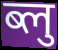
ब्लु